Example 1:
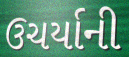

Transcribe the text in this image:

ઉચર્યાની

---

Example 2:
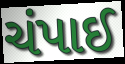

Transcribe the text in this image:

ચંપાઈ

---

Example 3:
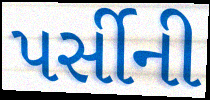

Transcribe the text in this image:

પર્સીની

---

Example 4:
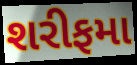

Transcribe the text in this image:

શરીફમા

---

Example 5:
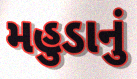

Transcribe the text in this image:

મહુડાનું